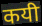
कयी